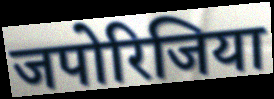
जपोरिजिया